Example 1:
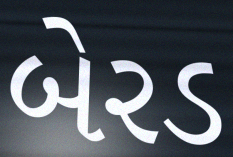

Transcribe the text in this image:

બેરડ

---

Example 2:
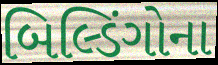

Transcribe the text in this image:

બિલ્ડિંગોના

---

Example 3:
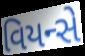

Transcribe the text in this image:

વિયન્સે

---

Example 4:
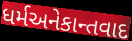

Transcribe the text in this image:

ધર્મઅનેકાન્તવાદ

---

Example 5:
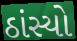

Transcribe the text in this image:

ઠાંસ્યો